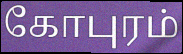
கோபுரம்